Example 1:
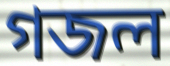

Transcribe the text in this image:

গজল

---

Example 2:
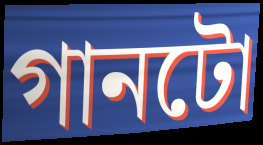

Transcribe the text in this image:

গানটো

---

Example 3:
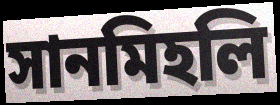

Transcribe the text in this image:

সানমিহলি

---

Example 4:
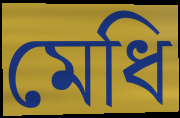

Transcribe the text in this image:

মেধি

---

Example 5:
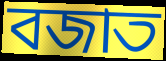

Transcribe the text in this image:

বজাত